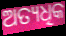
ଅତ୍ୟଧିକ